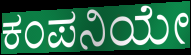
ಕಂಪನಿಯೇ